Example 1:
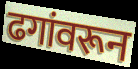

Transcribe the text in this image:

ढगांवरून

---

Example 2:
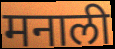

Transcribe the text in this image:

मनाली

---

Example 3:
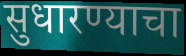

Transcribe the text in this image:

सुधारण्याचा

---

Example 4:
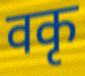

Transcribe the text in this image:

वकृ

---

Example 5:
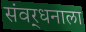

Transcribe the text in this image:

संवर्धनाला